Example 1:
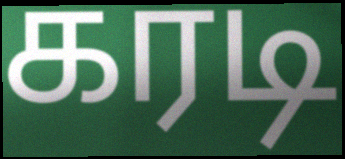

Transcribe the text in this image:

கரடி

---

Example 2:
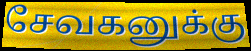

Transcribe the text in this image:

சேவகனுக்கு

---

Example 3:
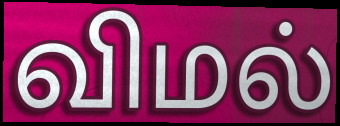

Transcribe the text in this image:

விமல்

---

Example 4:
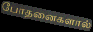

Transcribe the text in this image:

போதனைகளால்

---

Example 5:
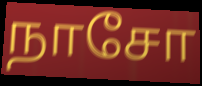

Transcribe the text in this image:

நாசோ